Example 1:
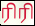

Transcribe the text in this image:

ரிரி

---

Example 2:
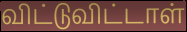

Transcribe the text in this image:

விட்டுவிட்டாள்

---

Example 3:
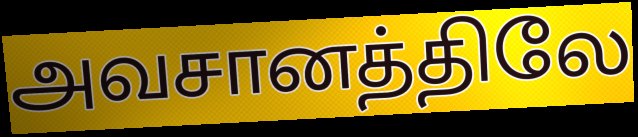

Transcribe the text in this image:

அவசானத்திலே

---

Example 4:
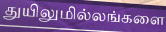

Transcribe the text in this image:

துயிலுமில்லங்களை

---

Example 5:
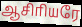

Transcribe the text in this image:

ஆசிரியரே